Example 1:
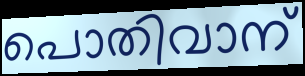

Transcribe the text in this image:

പൊതിവാന്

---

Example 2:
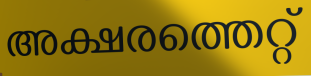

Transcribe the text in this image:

അക്ഷരത്തെറ്റ്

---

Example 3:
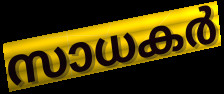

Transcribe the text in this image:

സാധകർ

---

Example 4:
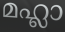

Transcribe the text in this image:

മഹ്ലാ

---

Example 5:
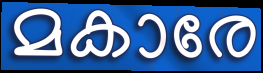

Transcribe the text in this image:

മകാരേ